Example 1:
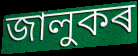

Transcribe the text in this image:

জালুকৰ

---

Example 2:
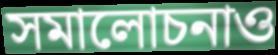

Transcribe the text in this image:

সমালোচনাও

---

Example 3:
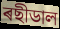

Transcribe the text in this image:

ৰছীডাল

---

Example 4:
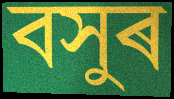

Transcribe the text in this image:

বসুৰ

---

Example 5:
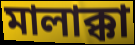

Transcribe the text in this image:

মালাক্কা